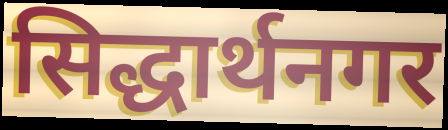
सिद्धार्थनगर